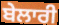
ਬੇਲਾਰੀ